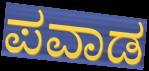
ಪವಾಡ